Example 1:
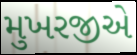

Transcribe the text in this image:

મુખરજીએ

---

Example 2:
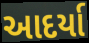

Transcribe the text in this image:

આદર્યા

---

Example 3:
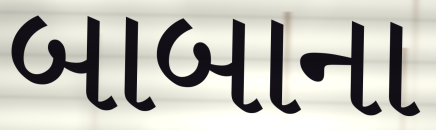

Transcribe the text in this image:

બાબાના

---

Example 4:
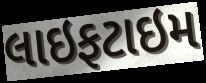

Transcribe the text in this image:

લાઇફટાઇમ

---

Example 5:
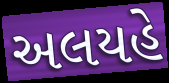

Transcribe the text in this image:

અલયહે